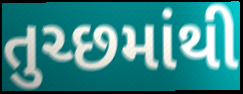
તુચ્છમાંથી